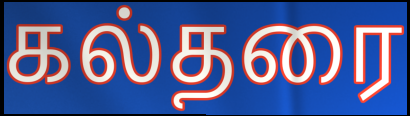
கல்தரை